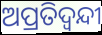
ଅପ୍ରତିଦ୍ବନ୍ଦୀ